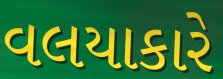
વલયાકારે